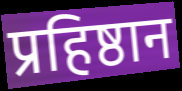
प्रहिष्ठान